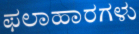
ಫಲಾಹಾರಗಳು